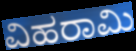
ವಿಹರಾಮಿ